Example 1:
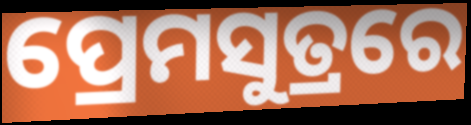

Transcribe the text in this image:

ପ୍ରେମସୁତ୍ରରେ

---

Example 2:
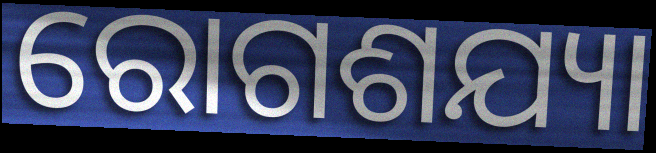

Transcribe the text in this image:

ରୋଗଶଯ୍ୟା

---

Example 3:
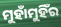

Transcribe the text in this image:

ମୁହାଁମୁହିଁର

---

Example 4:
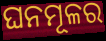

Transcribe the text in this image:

ଘନମୂଳର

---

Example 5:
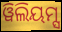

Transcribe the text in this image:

ୱିଲିୟମ୍ସ